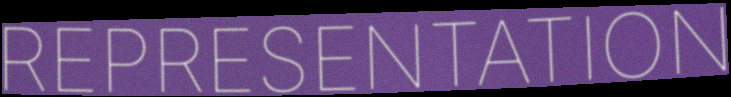
REPRESENTATION